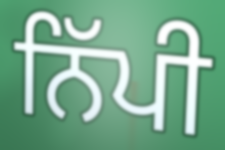
ਨਿੱਪੀ